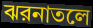
ঝরনাতলে